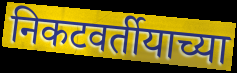
निकटवर्तीयाच्या